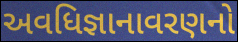
અવધિજ્ઞાનાવરણનો